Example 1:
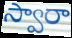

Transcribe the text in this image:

స్వారా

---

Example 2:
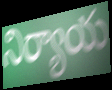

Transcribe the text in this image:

నిర్యాయ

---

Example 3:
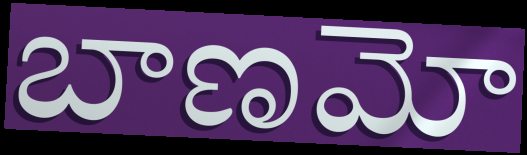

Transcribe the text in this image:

బాణమో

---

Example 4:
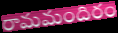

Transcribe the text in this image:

రామమందిరం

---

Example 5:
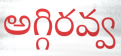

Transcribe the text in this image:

అగ్గిరవ్వ